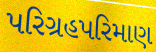
પરિગ્રહપરિમાણ